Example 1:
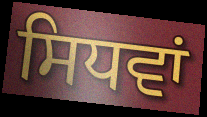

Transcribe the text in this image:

ਸਿਧਵਾਂ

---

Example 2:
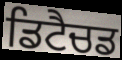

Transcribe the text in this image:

ਡਿਟੈਚਡ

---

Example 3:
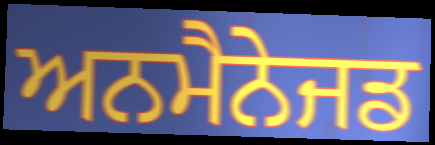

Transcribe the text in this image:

ਅਨਮੈਨੇਜਡ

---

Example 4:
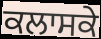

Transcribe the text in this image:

ਕਲਾਸਕੇ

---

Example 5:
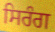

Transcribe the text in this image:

ਸਿਰੰਗ